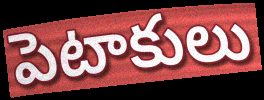
పెటాకులు